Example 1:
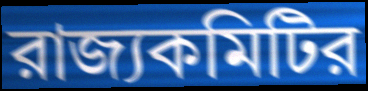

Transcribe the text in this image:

রাজ্যকমিটির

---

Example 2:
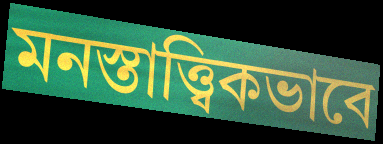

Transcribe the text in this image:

মনস্তাত্ত্বিকভাবে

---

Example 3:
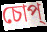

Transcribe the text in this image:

চোপ্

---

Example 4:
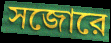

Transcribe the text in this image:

সজোরে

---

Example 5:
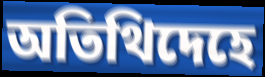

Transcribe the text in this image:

অতিথিদেহে